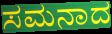
ಸಮನಾದ